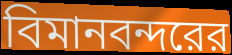
বিমানবন্দরের